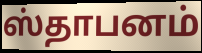
ஸ்தாபனம்